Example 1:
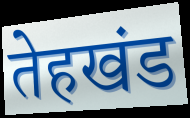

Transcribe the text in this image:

तेहखंड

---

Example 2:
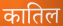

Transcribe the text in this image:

कातिल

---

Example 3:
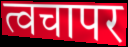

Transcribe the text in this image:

त्वचापर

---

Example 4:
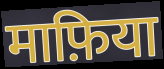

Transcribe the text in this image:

माफ़िया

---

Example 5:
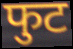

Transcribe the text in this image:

फुट